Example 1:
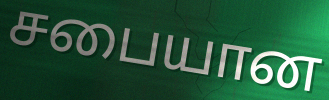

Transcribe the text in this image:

சபையான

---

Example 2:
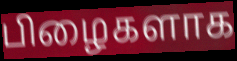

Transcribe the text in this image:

பிழைகளாக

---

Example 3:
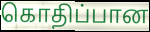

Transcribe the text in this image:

கொதிப்பான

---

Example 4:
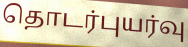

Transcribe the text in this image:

தொடர்புயர்வு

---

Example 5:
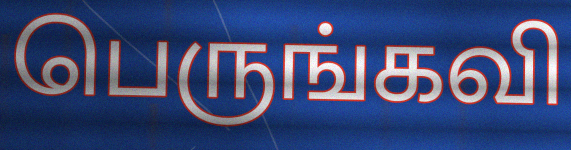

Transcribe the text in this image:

பெருங்கவி